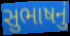
સુભાષનું